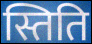
स्तिति